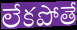
లేకపోతే